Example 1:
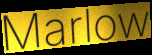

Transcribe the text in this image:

Marlow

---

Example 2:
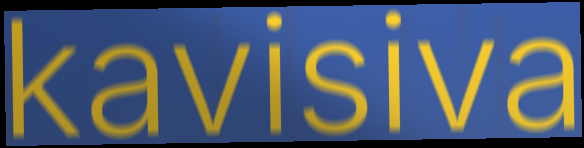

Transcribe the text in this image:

kavisiva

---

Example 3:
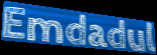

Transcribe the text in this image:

Emdadul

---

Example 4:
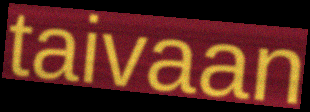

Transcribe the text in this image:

taivaan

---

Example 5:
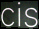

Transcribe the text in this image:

cis